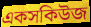
একসকিউজ